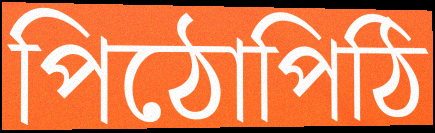
পিঠোপিঠি